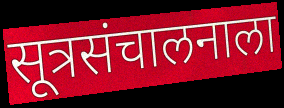
सूत्रसंचालनाला